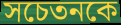
সচেতনকে